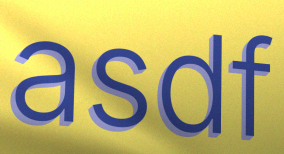
asdf